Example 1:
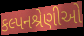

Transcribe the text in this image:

કલ્પનશ્રેણીઓ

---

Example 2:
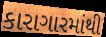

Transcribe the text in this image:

કારાગારમાંથી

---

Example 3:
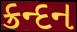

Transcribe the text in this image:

ક્રન્દન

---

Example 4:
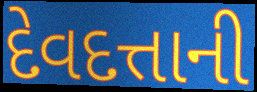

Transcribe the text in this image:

દેવદત્તાની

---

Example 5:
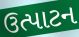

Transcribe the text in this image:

ઉત્પાટન